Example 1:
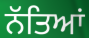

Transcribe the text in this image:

ਨੱਤਿਆਂ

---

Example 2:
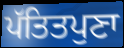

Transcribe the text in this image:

ਪੱਤਿਤਪੁਣਾ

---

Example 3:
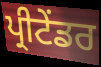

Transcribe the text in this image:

ਪ੍ਰੀਟੇਂਡਰ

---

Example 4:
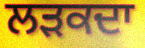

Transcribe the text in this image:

ਲੜਕਦਾ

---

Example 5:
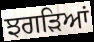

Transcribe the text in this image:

ਝਗੜਿਆਂ